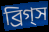
ব্রিগ্‌স